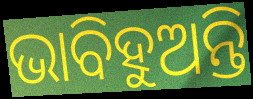
ଭାବିହୁଅନ୍ତି